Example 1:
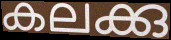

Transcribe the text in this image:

കലക്കു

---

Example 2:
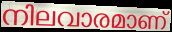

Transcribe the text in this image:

നിലവാരമാണ്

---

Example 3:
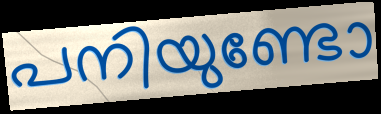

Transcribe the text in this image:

പനിയുണ്ടോ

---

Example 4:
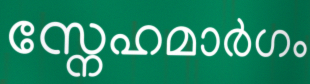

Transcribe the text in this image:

സ്നേഹമാർഗം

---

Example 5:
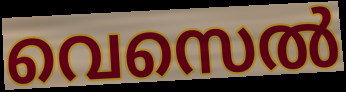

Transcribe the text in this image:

വെസെൽ